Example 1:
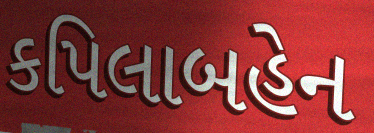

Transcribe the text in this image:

કપિલાબહેન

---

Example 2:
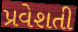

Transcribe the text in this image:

પ્રવેશતી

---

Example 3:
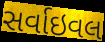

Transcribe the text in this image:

સર્વાઇવલ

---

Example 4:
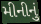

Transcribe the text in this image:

મીનીનું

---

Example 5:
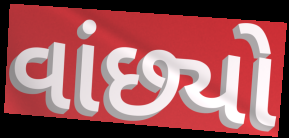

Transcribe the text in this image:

વાંછ્યો